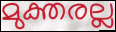
മുക്തരല്ല